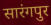
सारंगपुर